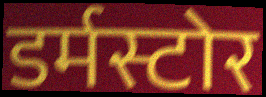
डर्मस्टोर